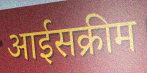
आईसक्रीम